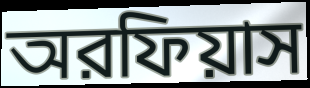
অরফিয়াস